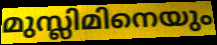
മുസ്ലിമിനെയും